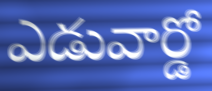
ఎడువార్డో